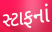
સ્ટાફનાં